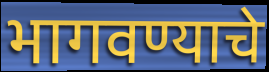
भागवण्याचे